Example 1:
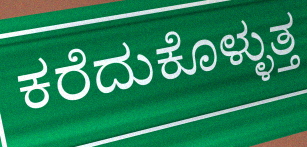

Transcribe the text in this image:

ಕರೆದುಕೊಳ್ಳುತ್ತ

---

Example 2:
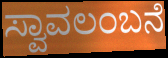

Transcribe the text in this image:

ಸ್ವಾವಲಂಬನೆ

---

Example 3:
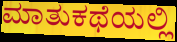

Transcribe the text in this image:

ಮಾತುಕಥೆಯಲ್ಲಿ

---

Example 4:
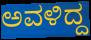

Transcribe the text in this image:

ಅವಳಿದ್ದ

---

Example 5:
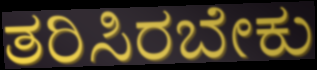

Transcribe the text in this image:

ತರಿಸಿರಬೇಕು